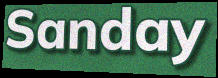
Sanday